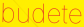
budete